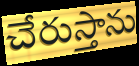
చేరుస్తాను